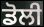
ਡੋਲੀ